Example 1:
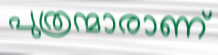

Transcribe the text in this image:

പുത്രന്മാരാണ്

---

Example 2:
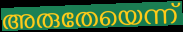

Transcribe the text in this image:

അരുതേയെന്ന്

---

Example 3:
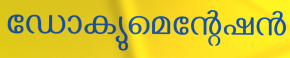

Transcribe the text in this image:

ഡോക്യുമെന്റേഷൻ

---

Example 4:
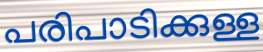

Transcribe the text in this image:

പരിപാടിക്കുള്ള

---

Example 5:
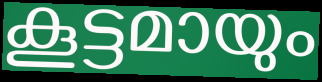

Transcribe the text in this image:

കൂട്ടമായും